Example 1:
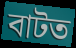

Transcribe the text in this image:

বাটত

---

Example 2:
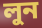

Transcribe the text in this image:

লুন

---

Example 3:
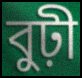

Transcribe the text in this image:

বুঢ়ী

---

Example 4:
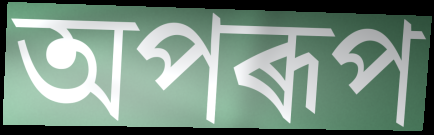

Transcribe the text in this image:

অপৰূপ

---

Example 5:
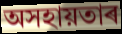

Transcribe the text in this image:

অসহায়তাৰ